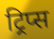
ट्रिप्स